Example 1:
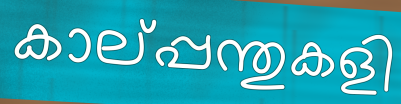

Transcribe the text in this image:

കാല്പ്പന്തുകളി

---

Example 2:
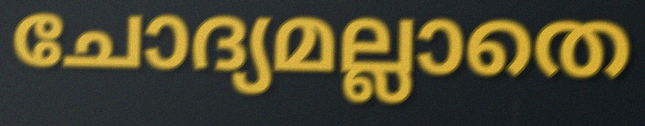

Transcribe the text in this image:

ചോദ്യമല്ലാതെ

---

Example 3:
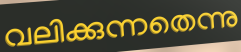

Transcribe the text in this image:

വലിക്കുന്നതെന്നു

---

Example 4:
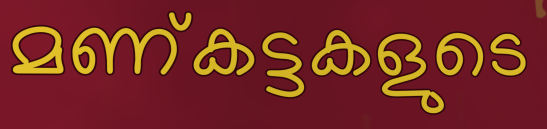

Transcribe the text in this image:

മണ്കട്ടകളുടെ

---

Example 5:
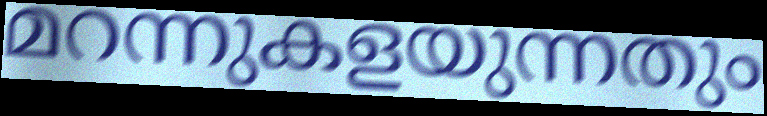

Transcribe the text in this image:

മറന്നുകളയുന്നതും